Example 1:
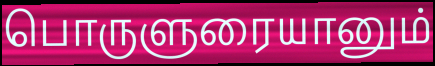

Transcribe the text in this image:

பொருளுரையானும்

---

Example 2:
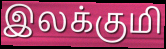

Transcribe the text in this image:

இலக்குமி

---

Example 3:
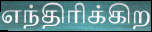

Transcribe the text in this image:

எந்திரிக்கிற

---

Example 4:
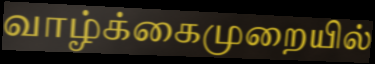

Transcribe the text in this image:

வாழ்க்கைமுறையில்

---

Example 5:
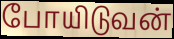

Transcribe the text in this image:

போயிடுவன்